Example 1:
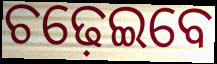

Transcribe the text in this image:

ଚଢ଼େଇବେ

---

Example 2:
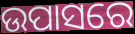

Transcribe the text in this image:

ଉପାସରେ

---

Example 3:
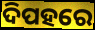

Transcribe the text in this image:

ଦିପହରେ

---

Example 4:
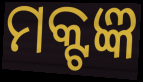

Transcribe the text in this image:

ମକ୍ଟଜ୍ଞ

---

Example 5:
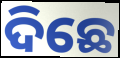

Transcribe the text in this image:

ଦିଛେ